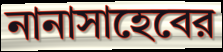
নানাসাহেবের